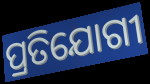
ପ୍ରତିଯୋଗୀ